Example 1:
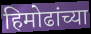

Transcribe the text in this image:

हिमोढांच्या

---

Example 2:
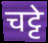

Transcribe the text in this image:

चट्टे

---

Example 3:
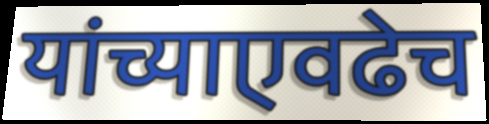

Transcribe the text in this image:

यांच्याएवढेच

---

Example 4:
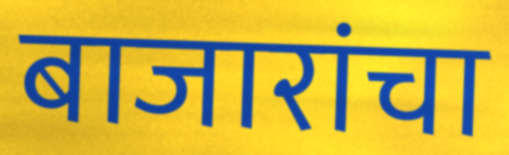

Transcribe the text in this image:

बाजारांचा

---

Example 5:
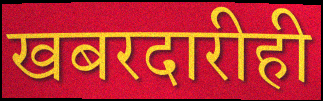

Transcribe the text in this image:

खबरदारीही